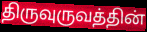
திருவுருவத்தின்